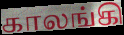
காலங்கி